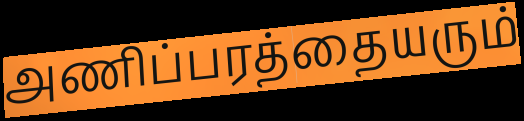
அணிப்பரத்தையரும்